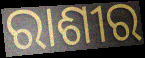
ରାଶୀର